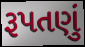
રૂપતણું